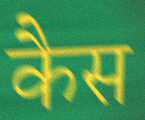
कैस